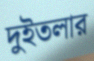
দুইতলার